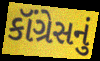
કૉંગ્રેસનું